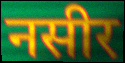
नसीर